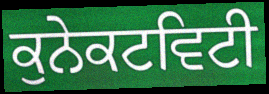
ਕੁਨੇਕਟਵਿਟੀ